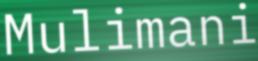
Mulimani